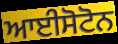
ਆਈਸੋਟੋਨ